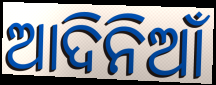
ଆଦିନିଆଁ